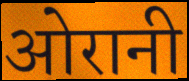
ओरानी